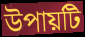
উপায়টি